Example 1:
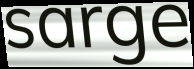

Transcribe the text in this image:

sarge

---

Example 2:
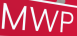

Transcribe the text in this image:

MWP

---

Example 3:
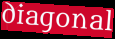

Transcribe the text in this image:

diagonal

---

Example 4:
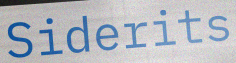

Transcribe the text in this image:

Siderits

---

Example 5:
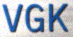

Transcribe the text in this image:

VGK